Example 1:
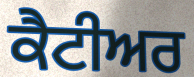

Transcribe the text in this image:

ਕੈਟੀਅਰ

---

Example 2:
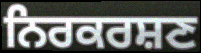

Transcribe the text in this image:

ਨਿਰਕਰਸ਼ਣ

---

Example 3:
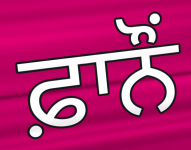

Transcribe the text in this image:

ਫ਼ਾਨੌਂ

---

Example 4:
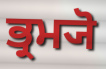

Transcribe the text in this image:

ਭ੍ਰਮ੍ਯੋ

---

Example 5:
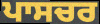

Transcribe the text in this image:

ਪਾਸਚਰ